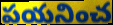
పయనించ